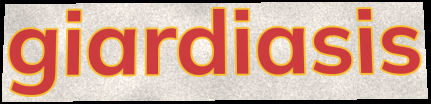
giardiasis